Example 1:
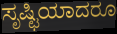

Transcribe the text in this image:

ಸೃಷ್ಟಿಯಾದರೂ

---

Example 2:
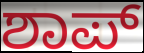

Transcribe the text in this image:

ಶಾಪ್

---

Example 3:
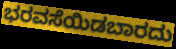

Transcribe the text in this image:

ಭರವಸೆಯಿಡಬಾರದು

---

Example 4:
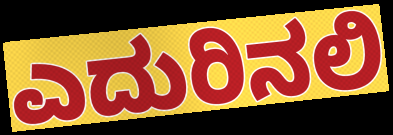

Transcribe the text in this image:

ಎದುರಿನಲಿ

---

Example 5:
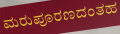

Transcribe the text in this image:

ಮರುಪೂರಣದಂತಹ